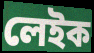
লেইক